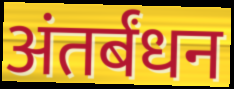
अंतर्बंधन